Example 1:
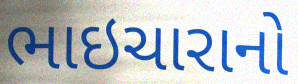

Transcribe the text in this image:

ભાઇચારાનો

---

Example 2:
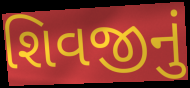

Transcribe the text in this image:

શિવજીનું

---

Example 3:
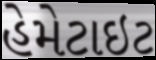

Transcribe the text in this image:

હેમેટાઇટ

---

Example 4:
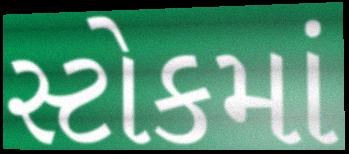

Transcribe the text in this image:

સ્ટોકમાં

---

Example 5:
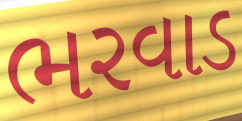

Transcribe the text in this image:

ભરવાડ